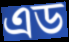
এড